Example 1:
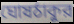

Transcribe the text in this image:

ঘোষঠাকুর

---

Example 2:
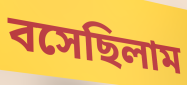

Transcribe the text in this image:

বসেছিলাম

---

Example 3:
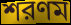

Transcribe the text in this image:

শরণম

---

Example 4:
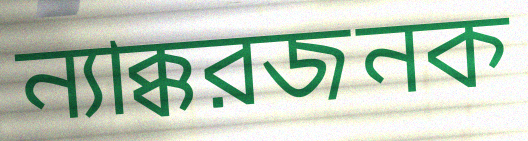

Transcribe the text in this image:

ন্যাক্করজনক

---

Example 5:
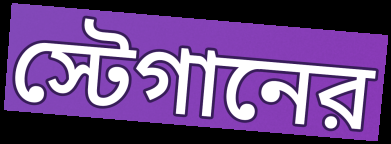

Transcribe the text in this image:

স্টেগানের